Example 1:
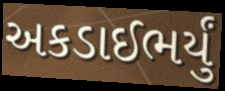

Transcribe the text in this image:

અકડાઈભર્યું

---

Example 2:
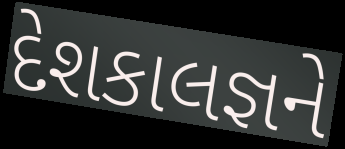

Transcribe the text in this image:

દેશકાલજ્ઞને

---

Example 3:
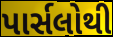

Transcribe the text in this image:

પાર્સલોથી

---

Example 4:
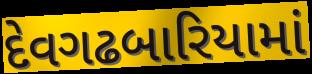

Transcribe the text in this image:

દેવગઢબારિયામાં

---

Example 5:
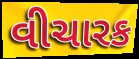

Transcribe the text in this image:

વીચારક